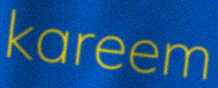
kareem